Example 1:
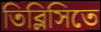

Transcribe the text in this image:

তিব্লিসিতে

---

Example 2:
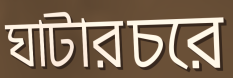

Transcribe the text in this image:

ঘাটারচরে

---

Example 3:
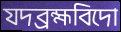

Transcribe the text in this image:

যদব্রহ্মবিদো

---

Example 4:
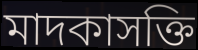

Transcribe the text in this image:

মাদকাসক্তি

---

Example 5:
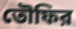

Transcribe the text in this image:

তৌফির